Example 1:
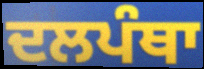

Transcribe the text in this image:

ਦਲਪੰਥਾ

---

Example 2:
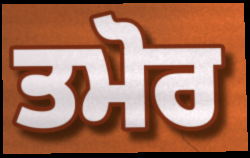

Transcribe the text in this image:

ਤਮੋਰ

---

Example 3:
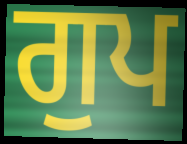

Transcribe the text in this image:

ਗੁਪ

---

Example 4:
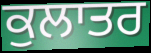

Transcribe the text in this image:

ਕੁਲਾਤਰ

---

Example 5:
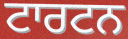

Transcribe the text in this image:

ਟਾਰਟਨ